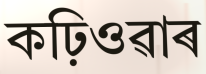
কঢ়িওৱাৰ